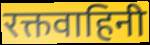
रक्तवाहिनी